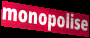
monopolise